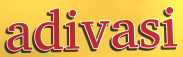
adivasi